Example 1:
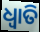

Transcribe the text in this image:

ଧ୍ବାତି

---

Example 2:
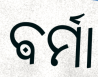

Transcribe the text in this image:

ଵର୍ମା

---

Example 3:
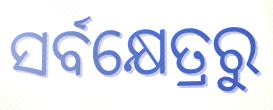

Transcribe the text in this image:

ସର୍ବକ୍ଷେତ୍ରରୁ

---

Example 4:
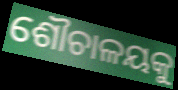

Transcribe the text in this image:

ଶୌଚାଳୟକୁ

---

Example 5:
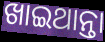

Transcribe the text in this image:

ଖାଇଥାନ୍ତା